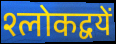
श्लोकद्वयें